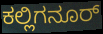
ಕಲ್ಲಿಗನೂರ್